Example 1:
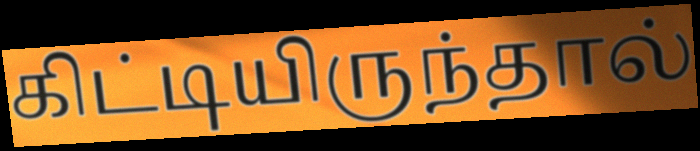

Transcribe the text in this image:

கிட்டியிருந்தால்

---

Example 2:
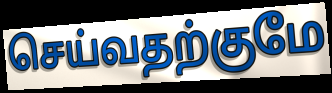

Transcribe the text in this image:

செய்வதற்குமே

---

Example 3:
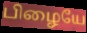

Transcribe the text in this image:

பிழையே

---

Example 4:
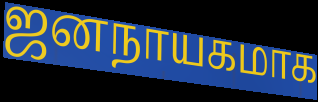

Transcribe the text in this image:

ஜனநாயகமாக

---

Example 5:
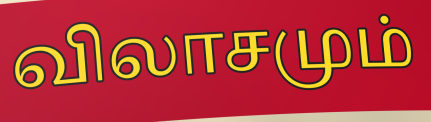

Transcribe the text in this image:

விலாசமும்